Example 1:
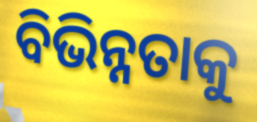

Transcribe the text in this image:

ବିଭିନ୍ନତାକୁ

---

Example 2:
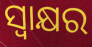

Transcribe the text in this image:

ସ୍ଵାକ୍ଷର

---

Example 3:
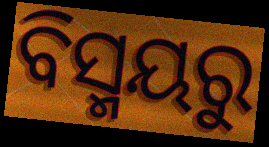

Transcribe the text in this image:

ବିସ୍ମୟରୁ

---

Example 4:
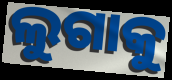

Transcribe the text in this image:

ଲୁଗାକୁ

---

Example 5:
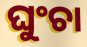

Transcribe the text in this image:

ଘୁଂଚା